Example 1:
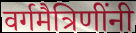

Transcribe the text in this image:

वर्गमैत्रिणींनी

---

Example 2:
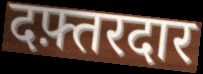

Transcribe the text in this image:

दफ़्तरदार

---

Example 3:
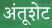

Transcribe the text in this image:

अंतूशेट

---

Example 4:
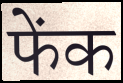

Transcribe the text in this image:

फेंक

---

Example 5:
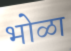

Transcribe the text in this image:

भोळा